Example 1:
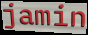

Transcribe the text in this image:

jamin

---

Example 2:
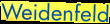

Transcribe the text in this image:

Weidenfeld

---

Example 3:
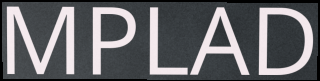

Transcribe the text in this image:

MPLAD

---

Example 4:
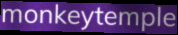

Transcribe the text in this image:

monkeytemple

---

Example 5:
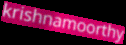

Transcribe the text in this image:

krishnamoorthy